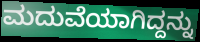
ಮದುವೆಯಾಗಿದ್ದನ್ನು